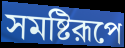
সমষ্টিরূপে